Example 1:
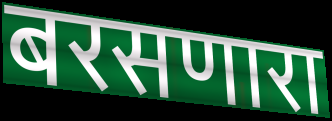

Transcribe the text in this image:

बरसणारा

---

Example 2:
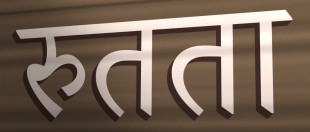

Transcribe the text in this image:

रुतता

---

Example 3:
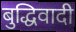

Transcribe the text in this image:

बुद्धिवादी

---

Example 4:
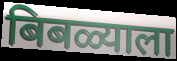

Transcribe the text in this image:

बिबळ्याला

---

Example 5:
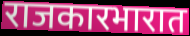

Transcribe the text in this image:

राजकारभारात